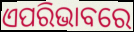
ଏପରିଭାବରେ